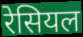
रेसियल